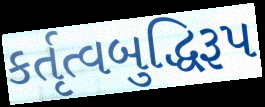
કર્તૃત્વબુદ્ધિરૂપ